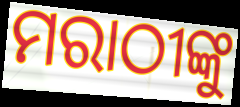
ମରାଠୀଙ୍କୁ